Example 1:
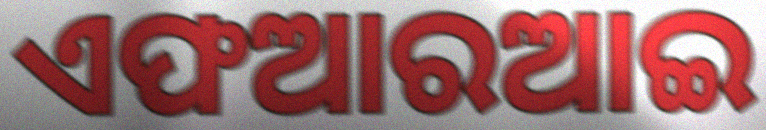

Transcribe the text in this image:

ଏଫଆରଆଇ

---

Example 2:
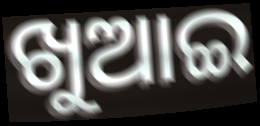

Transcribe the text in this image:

ଖୁଆଇ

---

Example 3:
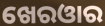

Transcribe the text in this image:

ଖେରଓାର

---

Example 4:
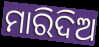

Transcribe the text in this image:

ମାରିଦିଅ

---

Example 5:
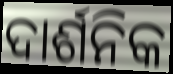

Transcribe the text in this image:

ଦାର୍ଶନିକ